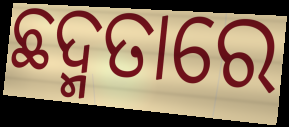
ଛଦ୍ମତାରେ